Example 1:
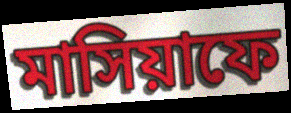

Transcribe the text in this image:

মাসিয়াফে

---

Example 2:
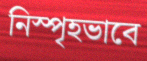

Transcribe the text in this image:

নিস্পৃহভাবে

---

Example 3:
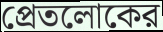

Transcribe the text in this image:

প্রেতলোকের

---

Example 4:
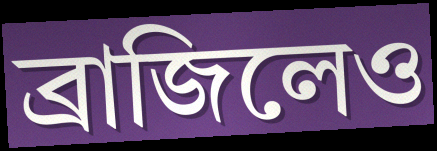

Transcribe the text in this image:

ব্রাজিলেও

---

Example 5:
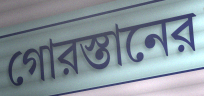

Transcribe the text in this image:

গোরস্তানের